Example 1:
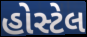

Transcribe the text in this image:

હોસ્ટેલ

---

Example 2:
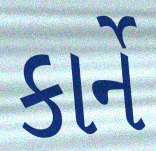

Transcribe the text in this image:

કાર્ને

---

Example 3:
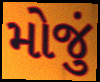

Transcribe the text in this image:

મોજું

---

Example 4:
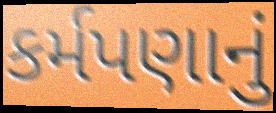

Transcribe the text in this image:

કર્મપણાનું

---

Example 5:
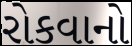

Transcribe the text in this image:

રોકવાનો